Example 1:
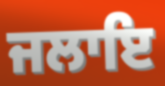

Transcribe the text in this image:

ਜਲਾਇ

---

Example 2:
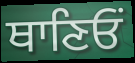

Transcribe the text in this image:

ਥਾਣਿਓਂ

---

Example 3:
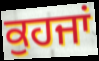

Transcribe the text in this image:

ਕੁਹਜਾਂ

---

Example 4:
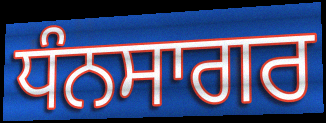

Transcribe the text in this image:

ਧੰਨਸਾਗਰ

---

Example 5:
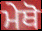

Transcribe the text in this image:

ਮੇਥੋ